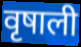
वृषाली